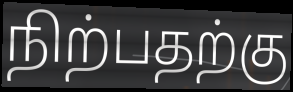
நிற்பதற்கு